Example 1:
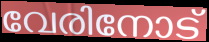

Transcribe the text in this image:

വേരിനോട്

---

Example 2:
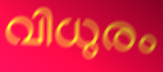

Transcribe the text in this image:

വിധുരം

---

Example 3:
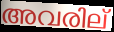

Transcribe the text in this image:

അവരില്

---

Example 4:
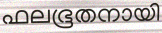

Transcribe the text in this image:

ഫലഭൂതനായി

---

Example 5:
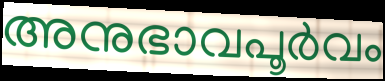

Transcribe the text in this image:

അനുഭാവപൂർവം